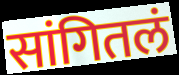
सांगितलं